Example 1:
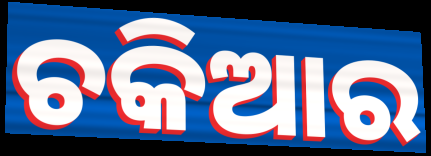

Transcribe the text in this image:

ଚକିଆର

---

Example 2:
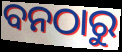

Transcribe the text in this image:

ବନଠାରୁ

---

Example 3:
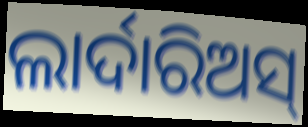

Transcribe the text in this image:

ଲାର୍ଦାରିଅସ୍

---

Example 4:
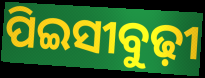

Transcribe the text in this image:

ପିଇସୀବୁଢ଼ୀ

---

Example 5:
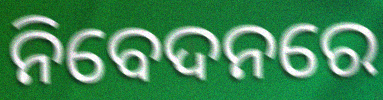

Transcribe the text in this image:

ନିବେଦନରେ